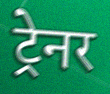
ट्रेनर